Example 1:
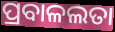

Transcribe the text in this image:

ପ୍ରବାଳଲତା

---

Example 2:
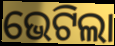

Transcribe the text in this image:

ଭେଟିଲା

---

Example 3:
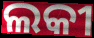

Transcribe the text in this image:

ଲକୀ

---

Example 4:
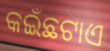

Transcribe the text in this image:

କଇଁଛଟାଏ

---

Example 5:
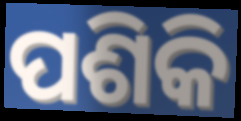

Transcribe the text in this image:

ପଶିକି